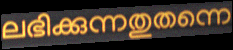
ലഭിക്കുന്നതുതന്നെ